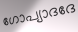
ഗോപ്യാദദേ